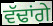
ਵੱਢਾਂਗੇ